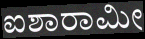
ಐಶಾರಾಮೀ